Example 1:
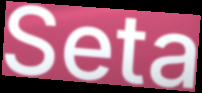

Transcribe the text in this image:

Seta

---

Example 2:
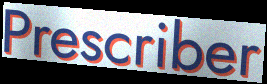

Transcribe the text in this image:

Prescriber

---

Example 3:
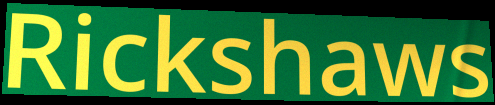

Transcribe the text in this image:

Rickshaws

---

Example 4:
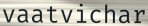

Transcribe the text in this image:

vaatvichar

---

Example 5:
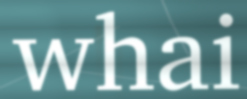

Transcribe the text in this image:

whai